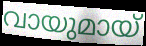
വായുമായ്